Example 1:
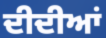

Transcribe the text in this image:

ਦੀਦੀਆਂ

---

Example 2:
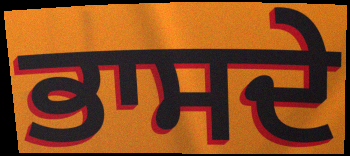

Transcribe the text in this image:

ਭਾਸਦੇ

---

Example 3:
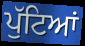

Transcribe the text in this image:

ਪੁੱਟਿਆਂ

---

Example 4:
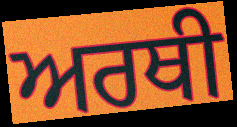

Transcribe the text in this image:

ਅਰਥੀ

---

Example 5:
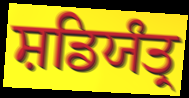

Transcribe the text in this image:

ਸ਼ਡਿਯੰਤ੍ਰ